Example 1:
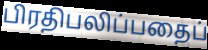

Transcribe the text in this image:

பிரதிபலிப்பதைப்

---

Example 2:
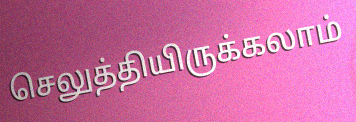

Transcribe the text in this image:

செலுத்தியிருக்கலாம்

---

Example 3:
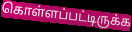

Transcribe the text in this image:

கொள்ளப்பட்டிருக்க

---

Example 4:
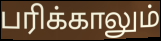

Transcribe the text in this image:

பரிக்காலும்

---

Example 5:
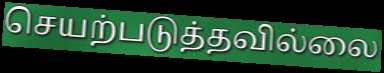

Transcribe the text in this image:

செயற்படுத்தவில்லை